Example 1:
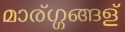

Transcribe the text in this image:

മാര്ഗ്ഗങ്ങള്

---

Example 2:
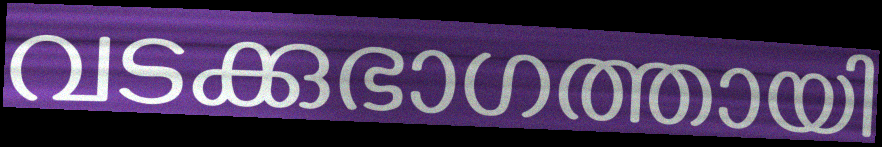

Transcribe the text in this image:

വടക്കുഭാഗത്തായി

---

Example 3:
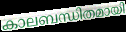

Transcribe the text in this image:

കാലബന്ധിതമായി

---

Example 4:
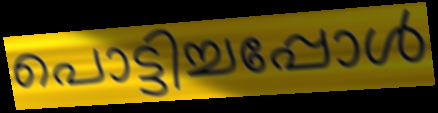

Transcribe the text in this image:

പൊട്ടിച്ചപ്പോൾ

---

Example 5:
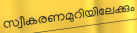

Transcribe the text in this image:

സ്വീകരണമുറിയിലേക്കും